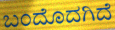
ಬಂದೊದಗಿದೆ